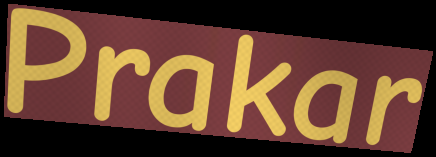
Prakar